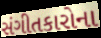
સંગીતકારોના